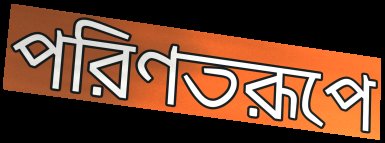
পরিণতরূপে